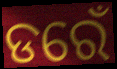
ଡରେଁ